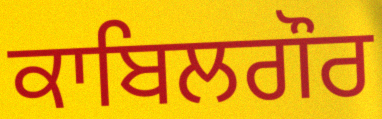
ਕਾਬਿਲਗੌਰ